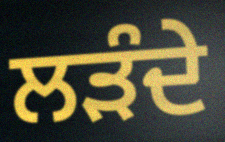
ਲੜੰਦੇ